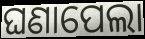
ଘଣାପେଲା